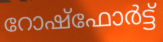
റോഷ്ഫോർട്ട്